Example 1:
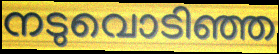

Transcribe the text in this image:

നടുവൊടിഞ്ഞ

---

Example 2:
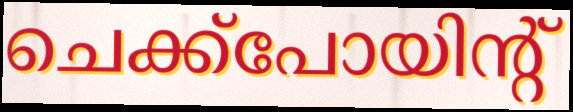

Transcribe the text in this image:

ചെക്ക്പോയിന്റ്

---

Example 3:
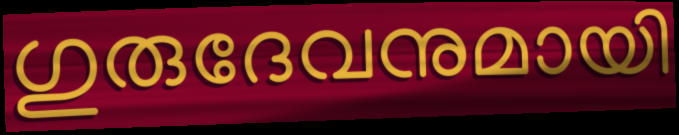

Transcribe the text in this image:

ഗുരുദേവനുമായി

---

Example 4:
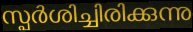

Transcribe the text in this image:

സ്പർശിച്ചിരിക്കുന്നു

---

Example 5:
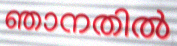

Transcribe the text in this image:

ഞാനതിൽ